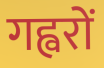
गह्वरों